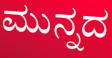
ಮುನ್ನದ